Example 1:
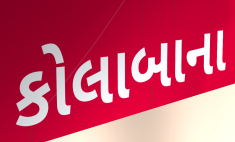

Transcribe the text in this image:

કોલાબાના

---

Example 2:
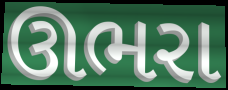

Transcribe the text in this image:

ઊભરા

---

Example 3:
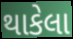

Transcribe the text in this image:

થાકેલા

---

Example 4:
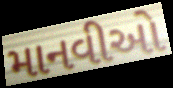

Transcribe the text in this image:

માનવીઓ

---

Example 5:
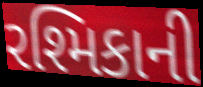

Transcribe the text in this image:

રશ્મિકાની